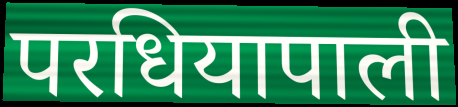
परधियापाली